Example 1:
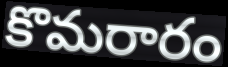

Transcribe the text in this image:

కొమరారం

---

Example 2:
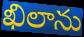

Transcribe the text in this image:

ఖిలాను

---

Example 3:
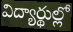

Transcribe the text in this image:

విద్యార్థుల్లో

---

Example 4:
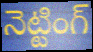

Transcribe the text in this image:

నెట్టింగ్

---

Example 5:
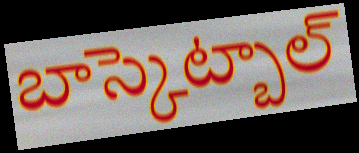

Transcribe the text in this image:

బాస్కెట్బాల్